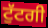
ਟੁੱਟਗੀ